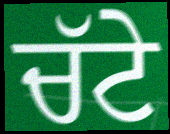
ਚੱਟੇ